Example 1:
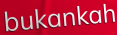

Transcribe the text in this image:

bukankah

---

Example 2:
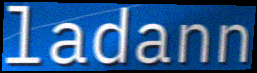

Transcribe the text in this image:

ladann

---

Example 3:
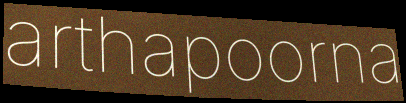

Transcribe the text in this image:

arthapoorna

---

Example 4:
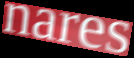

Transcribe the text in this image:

nares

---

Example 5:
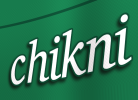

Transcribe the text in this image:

chikni